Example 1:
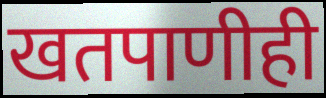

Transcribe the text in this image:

खतपाणीही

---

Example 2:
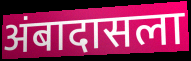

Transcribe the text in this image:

अंबादासला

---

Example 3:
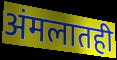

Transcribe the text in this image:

अंमलातही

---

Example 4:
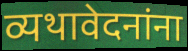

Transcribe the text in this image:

व्यथावेदनांना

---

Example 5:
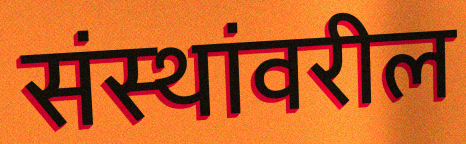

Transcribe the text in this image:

संस्थांवरील